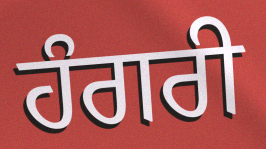
ਹੰਗਰੀ